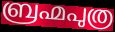
ബ്രഹ്മപുത്ര